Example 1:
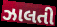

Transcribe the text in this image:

ઝાલતી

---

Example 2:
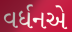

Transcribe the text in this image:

વર્ધનએ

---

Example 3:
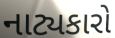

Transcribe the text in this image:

નાટ્યકારો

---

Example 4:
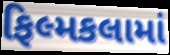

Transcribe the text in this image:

ફિલ્મકલામાં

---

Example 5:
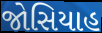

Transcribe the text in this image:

જોસિયાહ